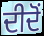
ਦੀਦੋਂ